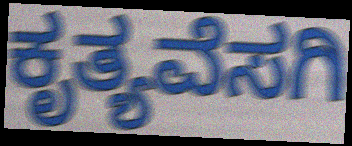
ಕೃತ್ಯವೆಸಗಿ